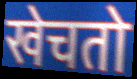
खेचतो